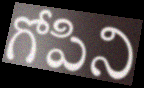
గోపిని